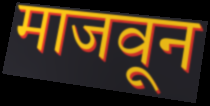
माजवून